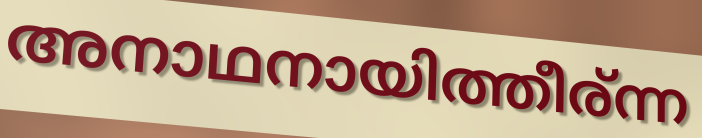
അനാഥനായിത്തീര്ന്ന